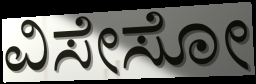
ವಿಸೇಸೋ